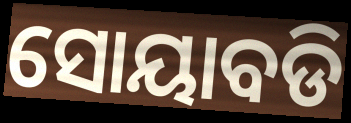
ସୋୟାବଡି